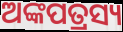
ଅଙ୍କପତ୍ରସ୍ୟ